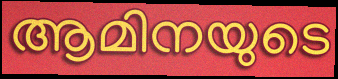
ആമിനയുടെ